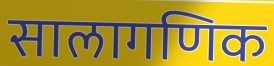
सालागणिक